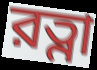
রত্না